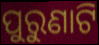
ପୁରୁଣାଟି